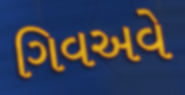
ગિવઅવે